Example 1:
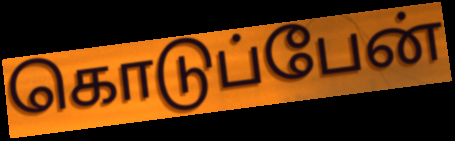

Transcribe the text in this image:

கொடுப்பேன்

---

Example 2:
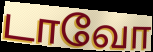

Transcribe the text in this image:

டாவோ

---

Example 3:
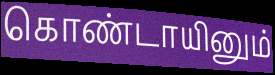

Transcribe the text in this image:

கொண்டாயினும்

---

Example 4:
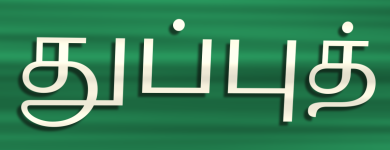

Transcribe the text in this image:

துப்புத்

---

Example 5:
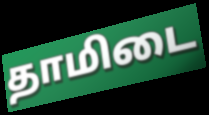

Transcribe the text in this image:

தாமிடை